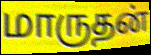
மாருதன்